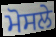
ਮੋਸਲੇ